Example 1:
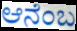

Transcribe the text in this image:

ಆನೆಂಬ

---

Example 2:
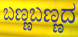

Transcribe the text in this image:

ಬಣ್ಣಬಣ್ಣದ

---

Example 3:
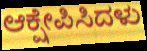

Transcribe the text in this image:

ಆಕ್ಷೇಪಿಸಿದಳು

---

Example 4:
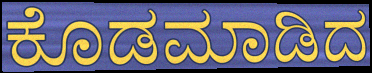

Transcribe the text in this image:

ಕೊಡಮಾಡಿದ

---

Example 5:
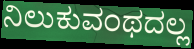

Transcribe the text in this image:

ನಿಲುಕುವಂಥದಲ್ಲ